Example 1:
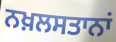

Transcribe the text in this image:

ਨਖ਼ਲਸਤਾਨਾਂ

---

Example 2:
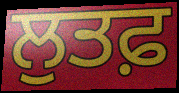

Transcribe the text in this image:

ਲੁਤਫ਼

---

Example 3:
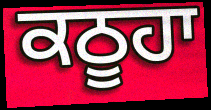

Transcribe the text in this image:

ਕਠੂਹਾ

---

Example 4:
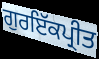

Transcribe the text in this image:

ਗੁਰਇੱਕਪ੍ਰੀਤ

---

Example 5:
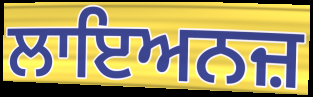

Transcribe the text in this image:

ਲਾਇਅਨਜ਼